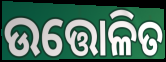
ଉତ୍ତୋଳିତ